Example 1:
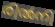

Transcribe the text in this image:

രിൽനി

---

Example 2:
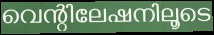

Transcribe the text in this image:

വെന്റിലേഷനിലൂടെ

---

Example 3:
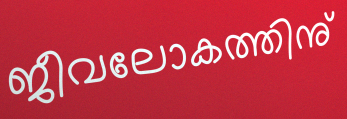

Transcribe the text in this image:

ജീവലോകത്തിനു്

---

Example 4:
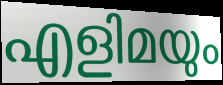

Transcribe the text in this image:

എളിമയും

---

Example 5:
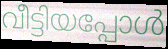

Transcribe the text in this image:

വീട്ടിയപ്പോൾ